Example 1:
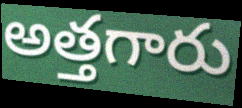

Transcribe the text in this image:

అత్తగారు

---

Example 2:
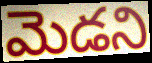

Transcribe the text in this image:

మెడని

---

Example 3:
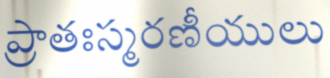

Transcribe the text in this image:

ప్రాతఃస్మరణీయులు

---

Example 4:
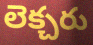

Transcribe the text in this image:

లెక్చరు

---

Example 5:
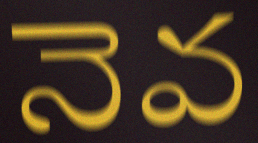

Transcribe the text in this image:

నెవ